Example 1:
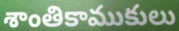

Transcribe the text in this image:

శాంతికాముకులు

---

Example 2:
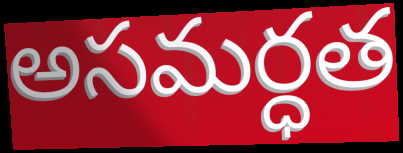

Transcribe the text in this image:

అసమర్ధత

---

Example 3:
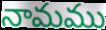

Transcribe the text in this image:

నామము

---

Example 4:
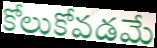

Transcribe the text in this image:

కోలుకోవడమే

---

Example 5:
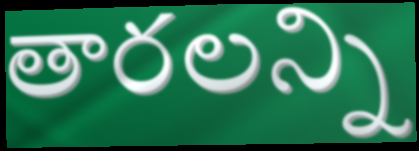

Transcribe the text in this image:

తారలన్ని